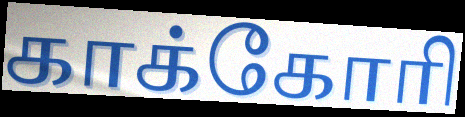
காக்கோரி